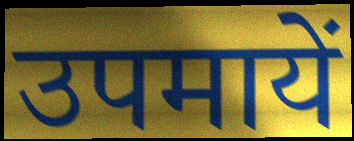
उपमायें